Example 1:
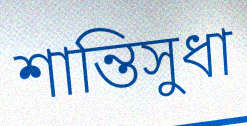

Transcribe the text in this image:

শান্তিসুধা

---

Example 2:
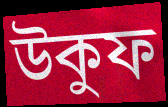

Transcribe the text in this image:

উকুফ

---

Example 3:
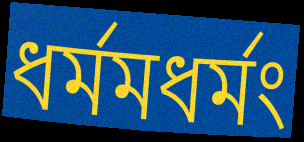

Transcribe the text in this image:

ধর্মমধর্মং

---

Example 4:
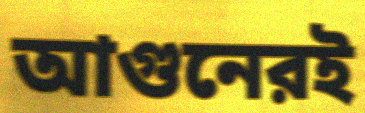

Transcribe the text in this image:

আগুনেরই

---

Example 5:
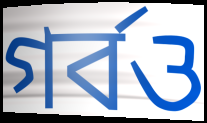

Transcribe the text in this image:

গর্বও